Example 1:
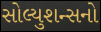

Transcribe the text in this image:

સોલ્યુશન્સનો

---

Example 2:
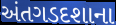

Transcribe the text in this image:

અંતગડદશાના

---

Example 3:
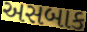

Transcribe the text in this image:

અસબાક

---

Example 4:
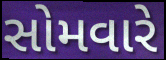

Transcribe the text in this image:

સોમવારે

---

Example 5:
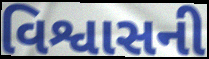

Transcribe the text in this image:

વિશ્વાસની